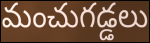
మంచుగడ్డలు